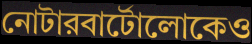
নোটারবার্টোলোকেও